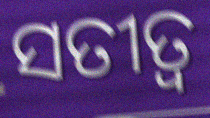
ସତୀତ୍ବ